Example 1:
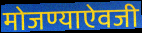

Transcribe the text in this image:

मोजण्याऐवजी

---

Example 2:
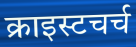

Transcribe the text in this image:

क्राइस्टचर्च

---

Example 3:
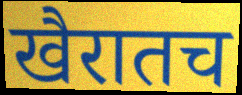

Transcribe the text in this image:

खैरातच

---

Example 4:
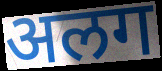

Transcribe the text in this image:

अलग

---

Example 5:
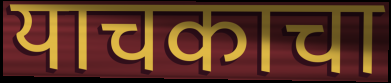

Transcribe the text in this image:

याचकाचा